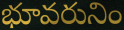
భూవరునిం